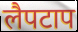
लैपटाप